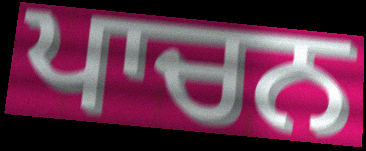
ਪਾਚਨ